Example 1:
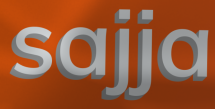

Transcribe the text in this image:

sajja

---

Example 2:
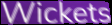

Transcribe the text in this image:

Wickets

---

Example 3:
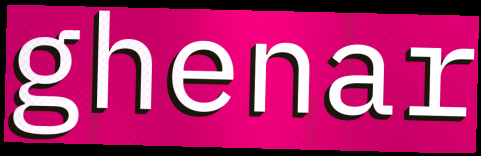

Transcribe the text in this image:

ghenar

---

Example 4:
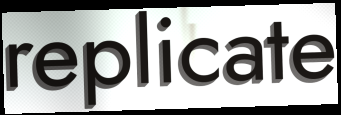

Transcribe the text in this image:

replicate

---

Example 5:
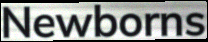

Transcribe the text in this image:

Newborns